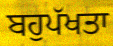
ਬਹੁਪੱਖਤਾ